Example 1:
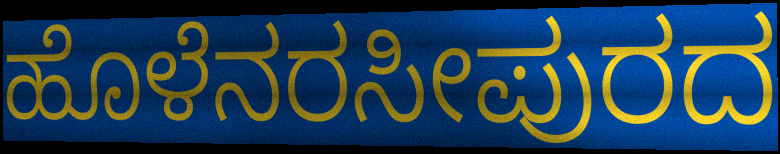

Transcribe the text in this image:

ಹೊಳೆನರಸೀಪುರದ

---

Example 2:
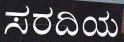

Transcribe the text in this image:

ಸರದಿಯ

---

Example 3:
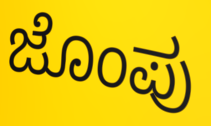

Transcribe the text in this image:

ಜೊಂಪು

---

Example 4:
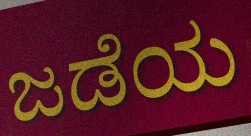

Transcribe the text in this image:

ಜಡೆಯ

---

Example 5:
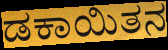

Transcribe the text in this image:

ಡಕಾಯಿತನ